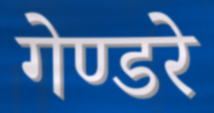
गेण्डरे